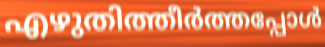
എഴുതിത്തീർത്തപ്പോൾ